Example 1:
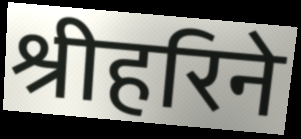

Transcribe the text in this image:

श्रीहरिने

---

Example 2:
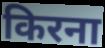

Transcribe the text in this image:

किरना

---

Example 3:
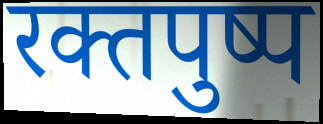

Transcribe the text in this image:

रक्तपुष्प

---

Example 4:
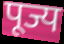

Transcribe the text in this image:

पूज्य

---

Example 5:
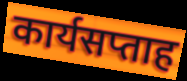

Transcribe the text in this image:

कार्यसप्ताह